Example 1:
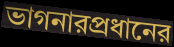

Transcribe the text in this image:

ভাগনারপ্রধানের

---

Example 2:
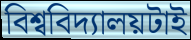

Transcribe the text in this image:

বিশ্ববিদ্যালয়টাই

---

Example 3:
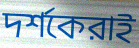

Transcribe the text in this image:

দর্শকেরাই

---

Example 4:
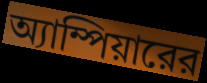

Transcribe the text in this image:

অ্যাম্পিয়ারের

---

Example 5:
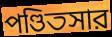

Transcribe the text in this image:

পণ্ডিতসার